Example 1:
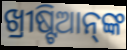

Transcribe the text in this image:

ଖ୍ରୀଷ୍ଟିଆନ୍‌ଙ୍କ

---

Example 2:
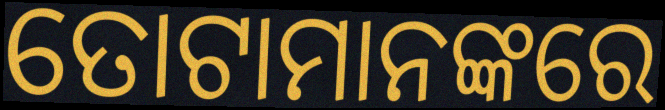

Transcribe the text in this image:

ତୋଟାମାନଙ୍କରେ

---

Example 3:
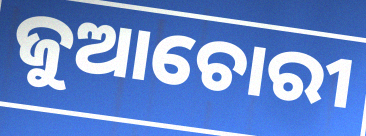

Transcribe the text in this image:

ଜୁଆଚୋରୀ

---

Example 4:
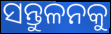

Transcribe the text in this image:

ସନ୍ତୁଳନକୁ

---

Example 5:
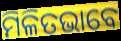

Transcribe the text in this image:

ମିଳିତଭାବେ